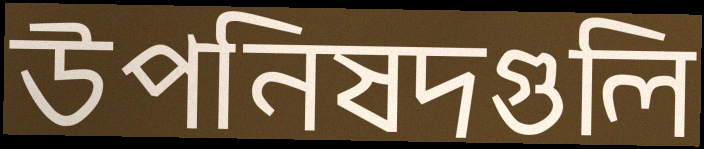
উপনিষদগুলি